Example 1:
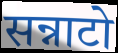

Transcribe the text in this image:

सन्नाटो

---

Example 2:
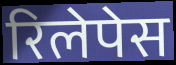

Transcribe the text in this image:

रिलेपेस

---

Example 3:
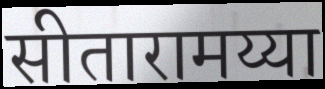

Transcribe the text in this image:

सीतारामय्या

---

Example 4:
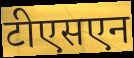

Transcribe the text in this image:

टीएसएन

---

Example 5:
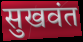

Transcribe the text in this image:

सुखवंत